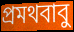
প্রমথবাবু